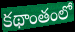
కథాంతంలో